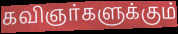
கவிஞர்களுக்கும்